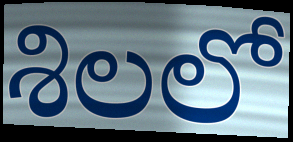
శిలలో